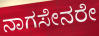
ನಾಗಸೇನರೇ